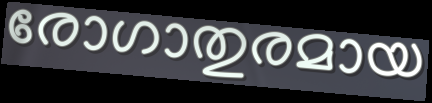
രോഗാതുരമായ